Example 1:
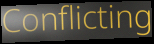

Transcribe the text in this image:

Conflicting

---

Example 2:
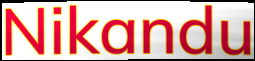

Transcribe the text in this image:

Nikandu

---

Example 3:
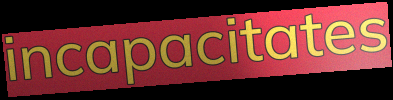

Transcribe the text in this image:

incapacitates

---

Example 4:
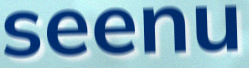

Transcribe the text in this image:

seenu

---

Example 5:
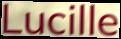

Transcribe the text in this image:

Lucille